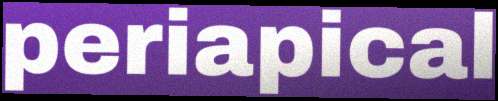
periapical